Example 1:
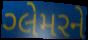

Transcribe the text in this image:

ગ્લેમરને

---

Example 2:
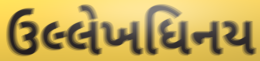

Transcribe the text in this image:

ઉલ્લેખધિનય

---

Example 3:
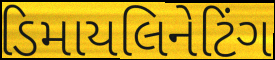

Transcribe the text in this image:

ડિમાયલિનેટિંગ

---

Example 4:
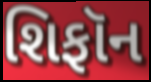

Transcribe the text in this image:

શિફૉન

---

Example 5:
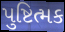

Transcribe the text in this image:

પુષ્ટિત્મક